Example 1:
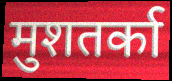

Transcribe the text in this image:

मुशतर्का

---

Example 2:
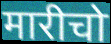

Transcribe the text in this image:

मारीचो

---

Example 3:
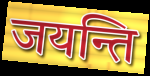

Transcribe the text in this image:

जयन्ति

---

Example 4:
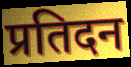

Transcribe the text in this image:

प्रतिदन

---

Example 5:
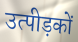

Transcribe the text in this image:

उत्पीड़कों